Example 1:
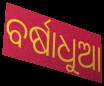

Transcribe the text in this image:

ବର୍ଷାଧୁଆ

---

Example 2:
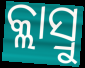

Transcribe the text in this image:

କ୍ଲାସ୍ରୁ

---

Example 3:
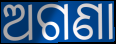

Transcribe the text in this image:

ଅଗଣା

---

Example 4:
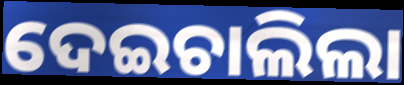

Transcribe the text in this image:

ଦେଇଚାଲିଲା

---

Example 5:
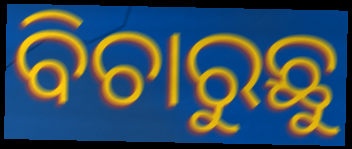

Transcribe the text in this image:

ବିଚାରୁଛୁ